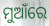
ମୁଆଁରେ